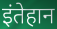
इंतेहान